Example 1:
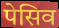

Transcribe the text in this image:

पेसिव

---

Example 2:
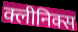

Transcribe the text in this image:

क्लीनिक्स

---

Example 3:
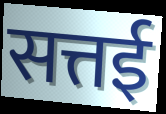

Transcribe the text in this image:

सत्तई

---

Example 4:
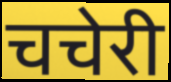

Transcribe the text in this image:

चचेरी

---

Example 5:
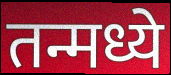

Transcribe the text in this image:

तन्मध्ये